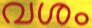
വശം